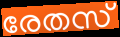
രേതസ്